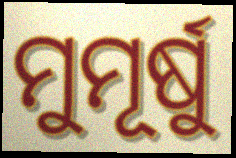
ମୁମୂର୍ଷୁ